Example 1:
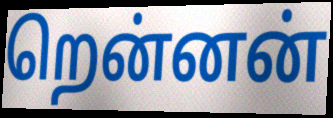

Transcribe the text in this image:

றென்னன்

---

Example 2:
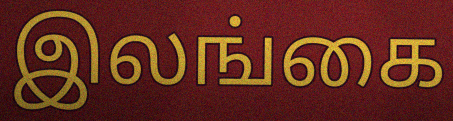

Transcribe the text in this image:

இலங்கை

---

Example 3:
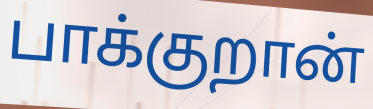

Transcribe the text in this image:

பாக்குறான்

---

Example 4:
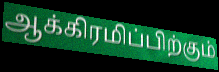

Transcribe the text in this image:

ஆக்கிரமிப்பிற்கும்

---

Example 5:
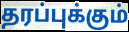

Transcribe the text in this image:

தரப்புக்கும்